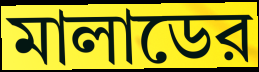
মালাডের